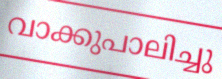
വാക്കുപാലിച്ചു